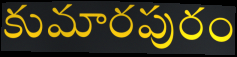
కుమారపురం